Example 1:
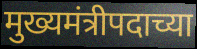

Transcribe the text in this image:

मुख्यमंत्रीपदाच्या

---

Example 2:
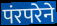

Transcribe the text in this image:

पंरपरेने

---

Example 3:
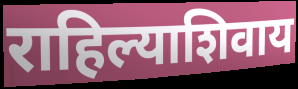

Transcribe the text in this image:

राहिल्याशिवाय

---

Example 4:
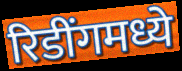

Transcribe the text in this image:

रिडींगमध्ये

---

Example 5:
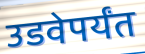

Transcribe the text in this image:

उडवेपर्यंत